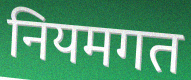
नियमगत